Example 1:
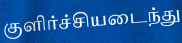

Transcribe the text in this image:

குளிர்ச்சியடைந்து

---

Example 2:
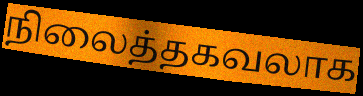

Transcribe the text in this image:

நிலைத்தகவலாக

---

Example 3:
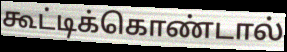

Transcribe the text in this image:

கூட்டிக்கொண்டால்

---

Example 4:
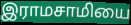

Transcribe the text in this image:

இராமசாமியை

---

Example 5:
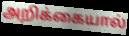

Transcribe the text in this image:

அறிக்கையால்